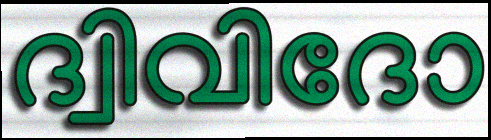
ദ്വിവിദോ